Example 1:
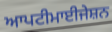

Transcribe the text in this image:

ਆਪਟੀਮਾਈਜੇਸ਼ਨ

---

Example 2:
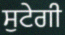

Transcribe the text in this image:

ਸੁਟੇਗੀ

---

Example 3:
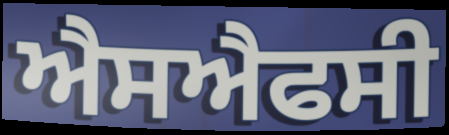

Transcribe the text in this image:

ਐਸਐਫਸੀ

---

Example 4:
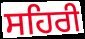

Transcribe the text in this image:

ਸਹਿਰੀ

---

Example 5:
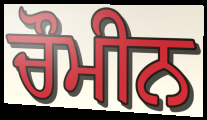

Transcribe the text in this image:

ਚੌਮੀਨ